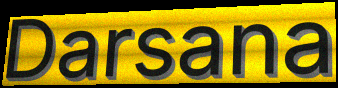
Darsana